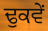
ਢੁਕਵੇਂ